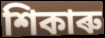
শিকাৰু